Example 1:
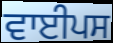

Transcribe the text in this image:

ਵਾਈਪਸ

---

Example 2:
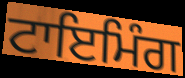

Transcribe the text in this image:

ਟਾਇਮਿੰਗ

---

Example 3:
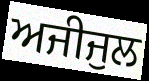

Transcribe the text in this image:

ਅਜੀਜੁਲ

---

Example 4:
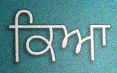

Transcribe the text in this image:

ਕਿਆ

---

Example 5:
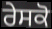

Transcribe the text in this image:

ਰੇਸਕੋ